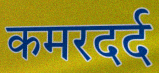
कमरदर्द